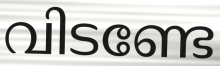
വിടണ്ടേ